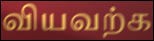
வியவற்க